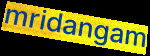
mridangam